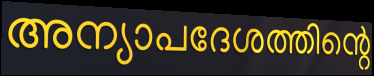
അന്യാപദേശത്തിന്റെ